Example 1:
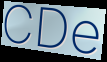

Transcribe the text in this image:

CDe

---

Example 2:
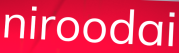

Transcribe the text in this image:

niroodai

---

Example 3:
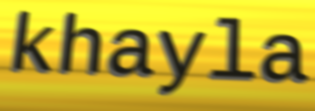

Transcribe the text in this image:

khayla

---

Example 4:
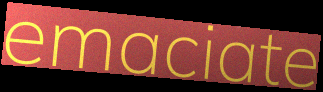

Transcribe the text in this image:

emaciate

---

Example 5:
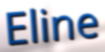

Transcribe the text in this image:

Eline